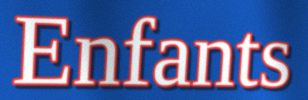
Enfants